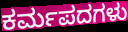
ಕರ್ಮಪದಗಳು